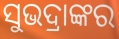
ସୁଭଦ୍ରାଙ୍କର